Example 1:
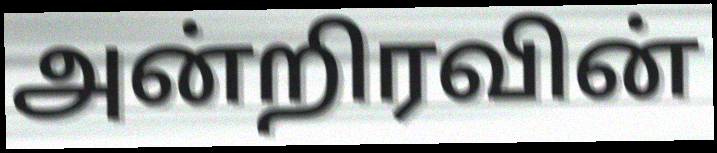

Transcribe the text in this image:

அன்றிரவின்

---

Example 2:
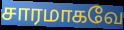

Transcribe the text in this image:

சாரமாகவே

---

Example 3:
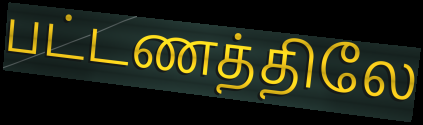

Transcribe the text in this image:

பட்டணத்திலே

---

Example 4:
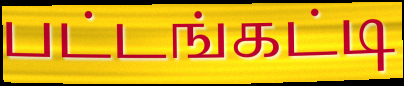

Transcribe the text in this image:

பட்டங்கட்டி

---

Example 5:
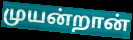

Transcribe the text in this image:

முயன்றான்